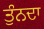
ਤੁੰਨਦਾ